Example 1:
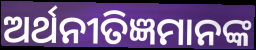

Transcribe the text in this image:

ଅର୍ଥନୀତିଜ୍ଞମାନଙ୍କ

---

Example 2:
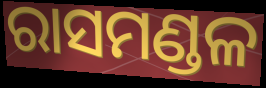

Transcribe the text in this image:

ରାସମଣ୍ଡଳ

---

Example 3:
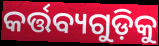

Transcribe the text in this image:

କର୍ତ୍ତବ୍ୟଗୁଡ଼ିକୁ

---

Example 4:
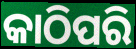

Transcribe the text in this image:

କାଠିପରି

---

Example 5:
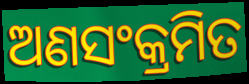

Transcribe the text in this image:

ଅଣସଂକ୍ରମିତ